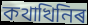
কথাখিনিৰ